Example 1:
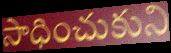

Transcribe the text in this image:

సాధించుకుని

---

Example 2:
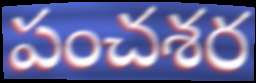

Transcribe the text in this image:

పంచశర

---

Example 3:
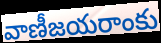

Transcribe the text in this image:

వాణీజయరాంకు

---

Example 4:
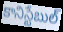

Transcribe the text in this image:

కానిస్టేబుల్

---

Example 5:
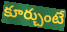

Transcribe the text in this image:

కూర్చుంటే